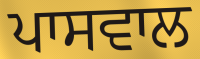
ਪਾਸਵਾਲ